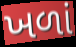
ખળાં